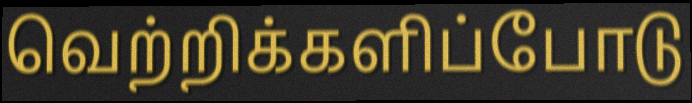
வெற்றிக்களிப்போடு